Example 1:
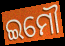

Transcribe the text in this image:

ଇମୌ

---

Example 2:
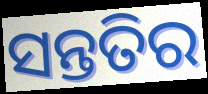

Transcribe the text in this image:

ସନ୍ତତିର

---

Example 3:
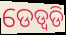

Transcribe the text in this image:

ଡେଡ୍ବଡି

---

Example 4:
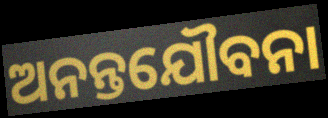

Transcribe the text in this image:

ଅନନ୍ତଯୌବନା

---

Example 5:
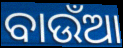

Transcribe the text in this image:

ବାଉଁଆ